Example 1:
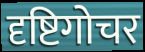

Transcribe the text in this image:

दृष्टिगोचर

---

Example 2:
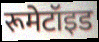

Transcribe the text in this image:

रूमेटॉइड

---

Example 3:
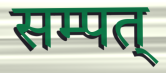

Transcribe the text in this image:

सम्पत्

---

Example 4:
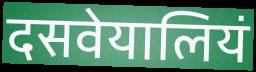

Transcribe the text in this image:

दसवेयालियं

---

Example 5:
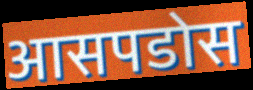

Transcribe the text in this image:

आसपडोस